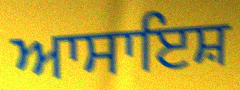
ਆਸਾਇਸ਼